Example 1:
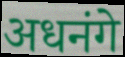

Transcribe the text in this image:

अधनंगे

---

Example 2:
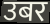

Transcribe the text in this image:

उबर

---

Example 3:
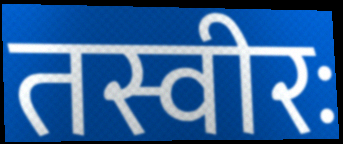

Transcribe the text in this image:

तस्वीरः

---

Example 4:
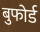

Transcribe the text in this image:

बुफोर्ड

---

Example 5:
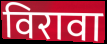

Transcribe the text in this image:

विरावा